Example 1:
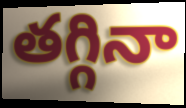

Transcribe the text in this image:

తగ్గినా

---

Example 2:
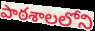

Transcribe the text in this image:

పాఠశాలలోని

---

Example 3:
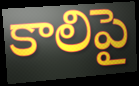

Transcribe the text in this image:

కాలిపై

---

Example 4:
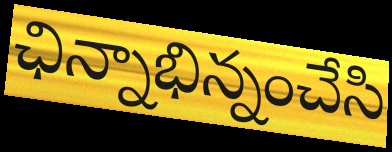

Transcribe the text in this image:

ఛిన్నాభిన్నంచేసి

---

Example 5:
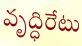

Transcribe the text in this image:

వృద్ధిరేటు